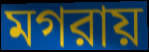
মগরায়